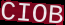
CIOB